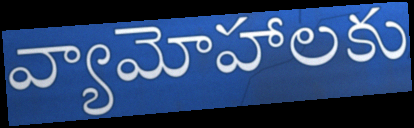
వ్యామోహాలకు